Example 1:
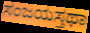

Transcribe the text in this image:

ಸಂಜಯಸ್ತಥಾ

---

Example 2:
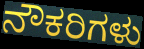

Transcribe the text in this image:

ನೌಕರಿಗಳು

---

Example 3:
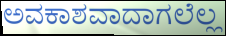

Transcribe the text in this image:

ಅವಕಾಶವಾದಾಗಲೆಲ್ಲ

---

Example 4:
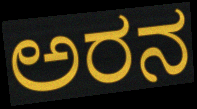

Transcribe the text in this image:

ಅರನ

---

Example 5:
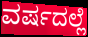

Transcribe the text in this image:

ವರ್ಷದಲ್ಲೆ